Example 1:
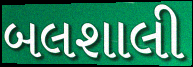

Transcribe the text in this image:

બલશાલી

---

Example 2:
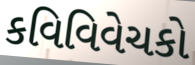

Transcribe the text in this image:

કવિવિવેચકો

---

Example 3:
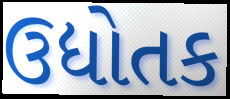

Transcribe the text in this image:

ઉદ્યોતક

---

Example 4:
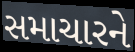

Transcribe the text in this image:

સમાચારને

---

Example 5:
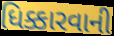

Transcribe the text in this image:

ધિક્કારવાની